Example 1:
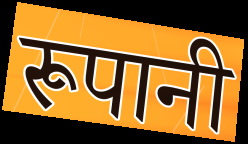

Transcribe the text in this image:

रूपानी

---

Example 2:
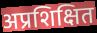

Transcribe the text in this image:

अप्रशिक्षित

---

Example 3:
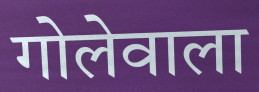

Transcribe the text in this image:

गोलेवाला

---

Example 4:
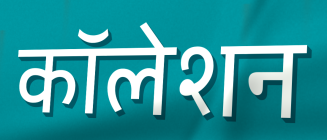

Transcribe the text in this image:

कॉलेशन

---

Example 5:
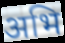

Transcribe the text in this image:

अभि